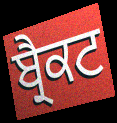
ਬ੍ਰੈਕਟ